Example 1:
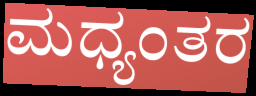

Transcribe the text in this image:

ಮಧ್ಯಂತರ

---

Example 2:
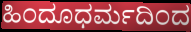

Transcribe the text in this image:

ಹಿಂದೂಧರ್ಮದಿಂದ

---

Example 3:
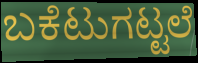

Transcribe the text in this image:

ಬಕೆಟುಗಟ್ಟಲೆ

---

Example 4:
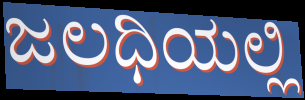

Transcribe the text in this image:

ಜಲಧಿಯಲ್ಲಿ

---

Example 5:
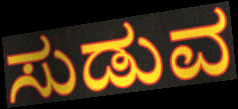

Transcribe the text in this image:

ಸುಡುವ